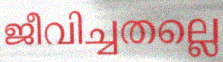
ജീവിച്ചതല്ലെ